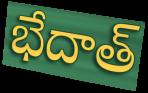
భేదాత్